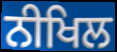
ਨੀਖਿਲ